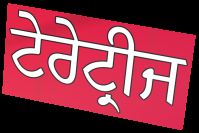
ਟੇਰੇਟ੍ਰੀਜ